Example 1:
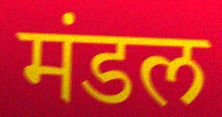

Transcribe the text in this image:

मंडल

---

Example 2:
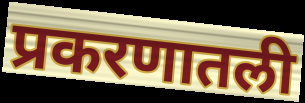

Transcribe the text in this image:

प्रकरणातली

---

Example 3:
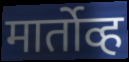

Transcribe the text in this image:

मार्तोव्ह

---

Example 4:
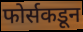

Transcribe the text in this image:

फोर्सकडून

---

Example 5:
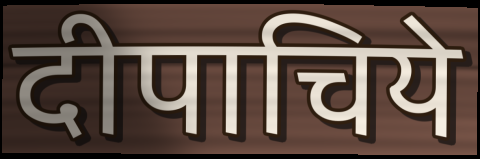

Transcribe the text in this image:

दीपाचिये